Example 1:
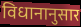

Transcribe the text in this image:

विधानानुसार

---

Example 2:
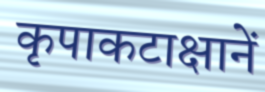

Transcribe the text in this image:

कृपाकटाक्षानें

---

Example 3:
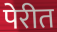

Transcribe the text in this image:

पेरीत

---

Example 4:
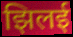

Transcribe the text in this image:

झिलई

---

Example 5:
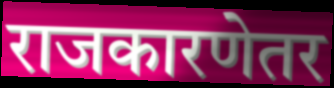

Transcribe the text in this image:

राजकारणेतर